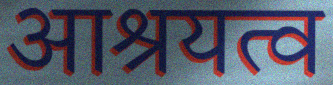
आश्रयत्व